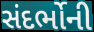
સંદર્ભોની